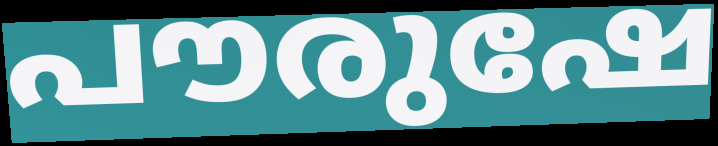
പൗരുഷേ